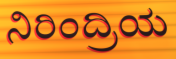
ನಿರಿಂದ್ರಿಯ